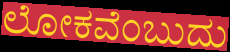
ಲೋಕವೆಂಬುದು